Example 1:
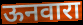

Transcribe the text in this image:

ऊनवारा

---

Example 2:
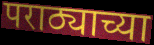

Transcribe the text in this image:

पराठ्याच्या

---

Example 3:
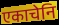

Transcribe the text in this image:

एकाचेनि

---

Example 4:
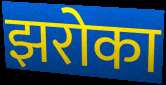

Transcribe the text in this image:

झरोका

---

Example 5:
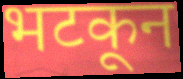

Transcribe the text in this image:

भटकून